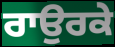
ਰਾਉਰਕੇ